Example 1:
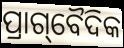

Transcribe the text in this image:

ପ୍ରାଗ୍‌ବୈଦିକ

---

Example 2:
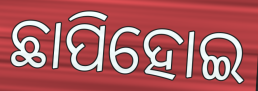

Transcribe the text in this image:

ଛାପିହୋଇ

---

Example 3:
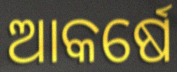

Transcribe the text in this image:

ଆକର୍ଷେ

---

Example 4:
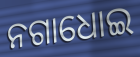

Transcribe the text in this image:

ନଗାଧୋଇ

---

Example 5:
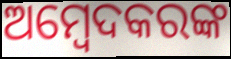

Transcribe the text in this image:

ଅମ୍ବେଦକରଙ୍କ